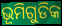
ଭୂମିଗୁଡିକ